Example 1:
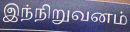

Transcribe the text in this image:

இந்நிறுவனம்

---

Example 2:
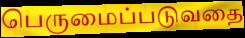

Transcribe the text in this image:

பெருமைப்படுவதை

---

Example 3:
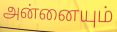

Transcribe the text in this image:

அன்னையும்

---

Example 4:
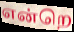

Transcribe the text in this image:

என்றெ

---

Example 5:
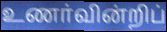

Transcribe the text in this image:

உணர்வின்றிப்